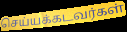
செய்யக்கடவர்கள்